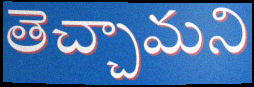
తెచ్చామని